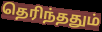
தெரிந்ததும்